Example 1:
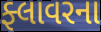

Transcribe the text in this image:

ફ્લાવરના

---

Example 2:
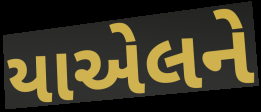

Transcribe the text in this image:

યાએલને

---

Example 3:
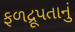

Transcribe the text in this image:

ફળદ્રૂપતાનું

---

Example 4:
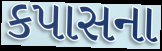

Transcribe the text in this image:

કપાસના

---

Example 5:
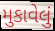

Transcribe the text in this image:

મુકાવેલું